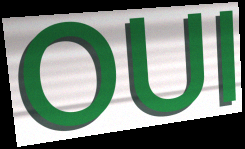
OUI